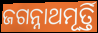
ଜଗନ୍ନାଥମୂର୍ତ୍ତି